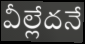
వీల్లేదనే